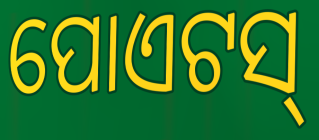
ପୋଏଟସ୍